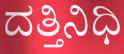
ದತ್ತಿನಿಧಿ